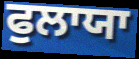
ਫੁਲਾਯਾ